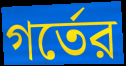
গর্তের